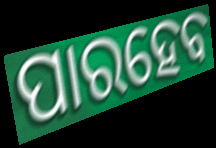
ପାରହେବ